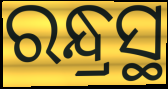
ରନ୍ଧ୍ରସ୍ଥ